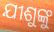
ଯୀଶୁଙ୍କୁ